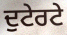
ਦੁਟੇਰਟੇ